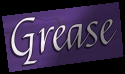
Grease